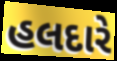
હલદારે